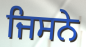
ਜਿਸਨੇ